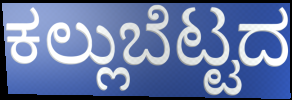
ಕಲ್ಲುಬೆಟ್ಟದ